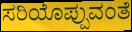
ಸರಿಯೊಪ್ಪುವಂತೆ